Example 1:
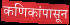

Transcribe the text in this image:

कणिकांपासून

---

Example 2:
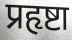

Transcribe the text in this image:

प्रहृष्टा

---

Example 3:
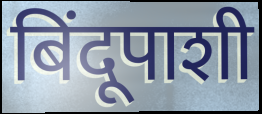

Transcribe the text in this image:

बिंदूपाशी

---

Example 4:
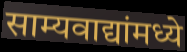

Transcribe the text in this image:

साम्यवाद्यांमध्ये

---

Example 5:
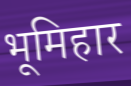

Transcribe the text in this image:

भूमिहार